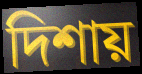
দিশায়